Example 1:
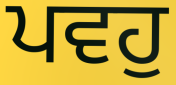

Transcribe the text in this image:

ਪਵਹੁ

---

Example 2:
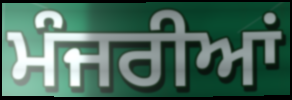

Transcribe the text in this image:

ਮੰਜਰੀਆਂ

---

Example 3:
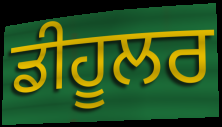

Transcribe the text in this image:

ਡੀਹੂਲਰ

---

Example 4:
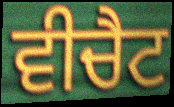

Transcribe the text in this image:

ਵੀਚੈਟ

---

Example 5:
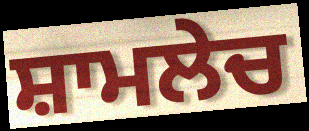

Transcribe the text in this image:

ਸ਼ਾਮਲੇਚ